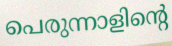
പെരുന്നാളിന്റെ